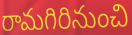
రామగిరినుంచి